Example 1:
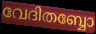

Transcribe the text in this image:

വേദിതബ്ബോ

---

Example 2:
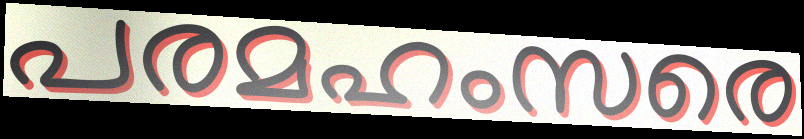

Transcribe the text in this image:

പരമഹംസരെ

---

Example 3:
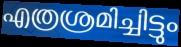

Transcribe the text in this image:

എത്രശ്രമിച്ചിട്ടും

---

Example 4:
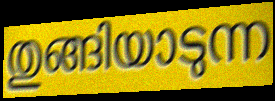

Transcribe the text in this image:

തുങ്ങിയാടുന്ന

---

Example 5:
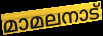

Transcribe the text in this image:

മാമലനാട്